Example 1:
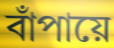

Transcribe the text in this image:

বাঁপায়ে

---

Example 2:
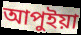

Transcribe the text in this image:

আপুইয়া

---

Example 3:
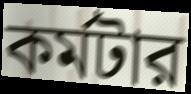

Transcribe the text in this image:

কর্মটার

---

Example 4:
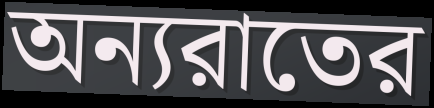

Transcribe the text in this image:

অন্যরাতের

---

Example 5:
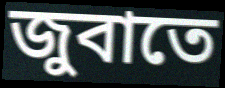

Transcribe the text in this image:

জুবাতে